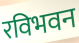
रविभवन